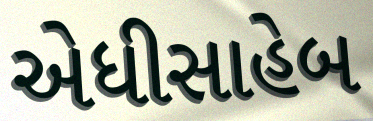
એધીસાહેબ